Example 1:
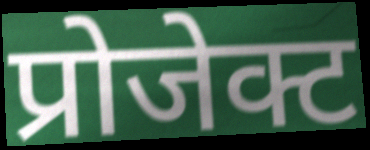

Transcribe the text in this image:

प्रोजेक्ट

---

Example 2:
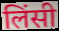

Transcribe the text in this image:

लिंसी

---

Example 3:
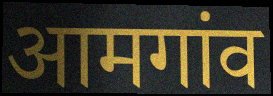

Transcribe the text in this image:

आमगांव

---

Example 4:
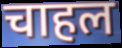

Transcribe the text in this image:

चाहल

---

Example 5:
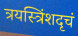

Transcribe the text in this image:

त्रयस्त्रिंशदृचं